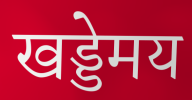
खड्डेमय